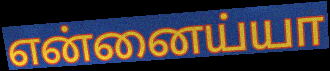
என்னைய்யா